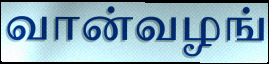
வான்வழங்